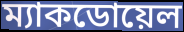
ম্যাকডোয়েল